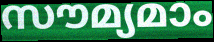
സൗമ്യമാം